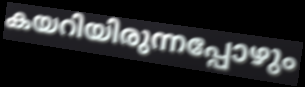
കയറിയിരുന്നപ്പോഴും